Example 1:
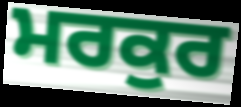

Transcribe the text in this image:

ਮਰਕੁਰ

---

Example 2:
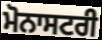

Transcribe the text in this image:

ਮੋਨਾਸਟਰੀ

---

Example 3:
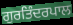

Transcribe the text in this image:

ਗੁਰਤਿੰਦਰਪਾਲ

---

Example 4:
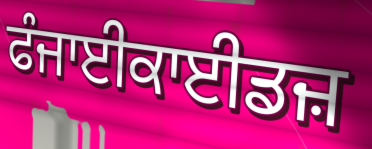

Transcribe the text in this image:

ਫੰਜਾਈਕਾਈਡਜ਼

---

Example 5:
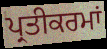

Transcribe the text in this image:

ਪ੍ਰਤੀਕਰਮਾਂ